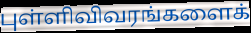
புள்ளிவிவரங்களைக்